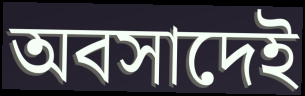
অবসাদেই